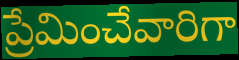
ప్రేమించేవారిగా